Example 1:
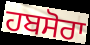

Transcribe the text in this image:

ਹਬਸੋਰਾ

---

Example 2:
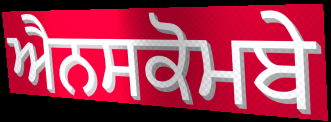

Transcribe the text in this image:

ਐਨਸਕੋਮਬੇ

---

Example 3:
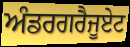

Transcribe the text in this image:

ਅੰਡਰਗਰੈਜੂਏਟ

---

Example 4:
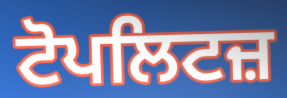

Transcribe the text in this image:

ਟੋਪਲਿਟਜ਼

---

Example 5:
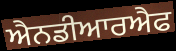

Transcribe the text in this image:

ਐਨਡੀਆਰਐਫ